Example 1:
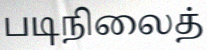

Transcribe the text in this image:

படிநிலைத்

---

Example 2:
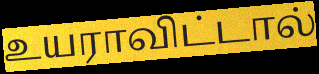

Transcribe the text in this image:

உயராவிட்டால்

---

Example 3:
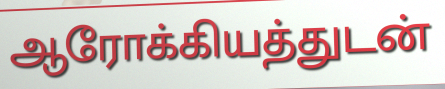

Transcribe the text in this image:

ஆரோக்கியத்துடன்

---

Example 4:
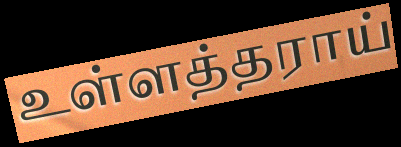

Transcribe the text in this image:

உள்ளத்தராய்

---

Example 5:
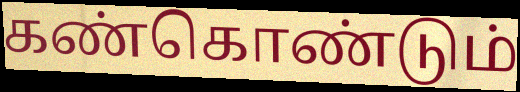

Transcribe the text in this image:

கண்கொண்டும்